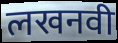
लखनवी